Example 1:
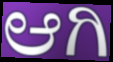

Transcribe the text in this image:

ಆಗಿ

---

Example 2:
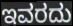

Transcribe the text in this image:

ಇವರದು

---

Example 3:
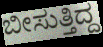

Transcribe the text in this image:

ಬೀಸುತ್ತಿದ್ದ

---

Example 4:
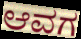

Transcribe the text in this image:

ಆವಗ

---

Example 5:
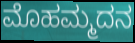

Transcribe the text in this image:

ಮೊಹಮ್ಮದನ